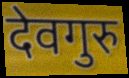
देवगुरु